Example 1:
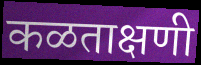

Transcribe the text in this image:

कळताक्षणी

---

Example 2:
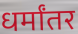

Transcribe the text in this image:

धर्मांतर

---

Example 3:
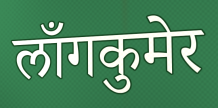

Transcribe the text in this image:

लाँगकुमेर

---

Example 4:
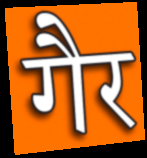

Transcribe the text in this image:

गैर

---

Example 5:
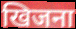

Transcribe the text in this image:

खिजना